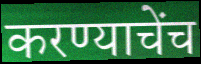
करण्याचेंच